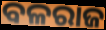
ବଳରାଜ